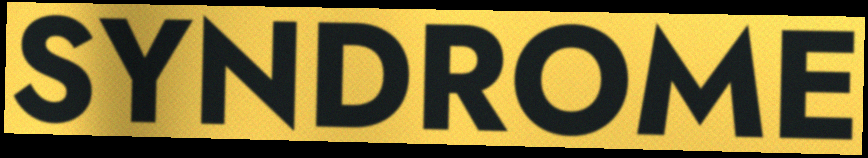
SYNDROME